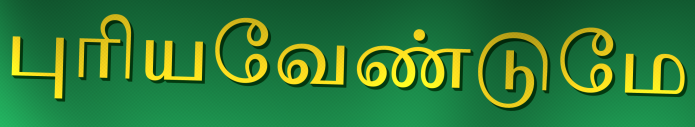
புரியவேண்டுமே